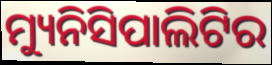
ମ୍ୟୁନିସିପାଲିଟିର